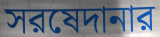
সরষেদানার